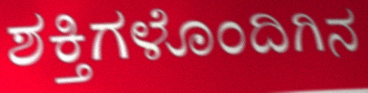
ಶಕ್ತಿಗಳೊಂದಿಗಿನ